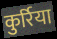
कुर्रिया